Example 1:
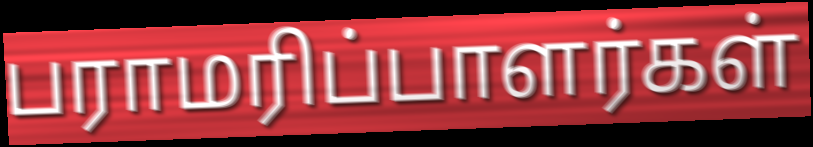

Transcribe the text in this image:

பராமரிப்பாளர்கள்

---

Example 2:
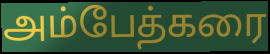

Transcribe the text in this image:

அம்பேத்கரை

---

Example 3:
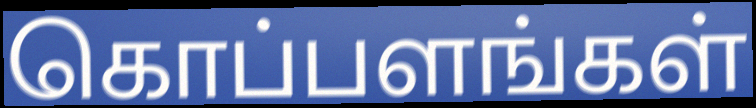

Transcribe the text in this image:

கொப்பளங்கள்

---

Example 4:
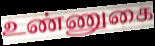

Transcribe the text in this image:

உண்ணுகை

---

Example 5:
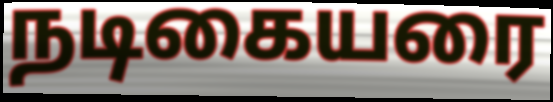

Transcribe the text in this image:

நடிகையரை